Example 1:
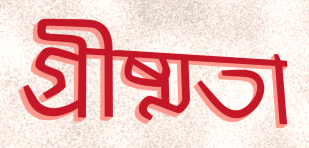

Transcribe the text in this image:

গ্ৰীষ্মতা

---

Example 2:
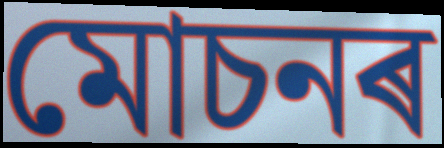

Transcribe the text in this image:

মোচনৰ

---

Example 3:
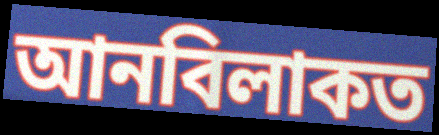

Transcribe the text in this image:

আনবিলাকত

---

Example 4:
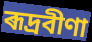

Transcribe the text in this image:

ৰূদ্ৰবীণা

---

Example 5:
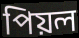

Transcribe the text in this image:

পিয়ল